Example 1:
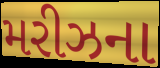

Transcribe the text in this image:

મરીઝના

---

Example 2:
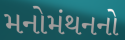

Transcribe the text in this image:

મનોમંથનનો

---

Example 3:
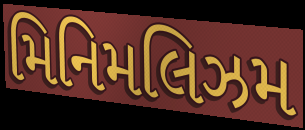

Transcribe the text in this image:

મિનિમલિઝમ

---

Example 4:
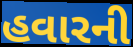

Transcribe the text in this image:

હવારની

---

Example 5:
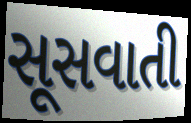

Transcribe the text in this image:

સૂસવાતી